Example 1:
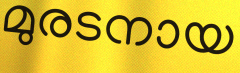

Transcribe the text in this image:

മുരടനായ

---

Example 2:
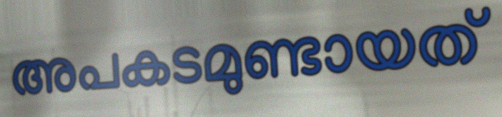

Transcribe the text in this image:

അപകടമുണ്ടായത്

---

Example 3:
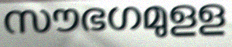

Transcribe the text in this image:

സൗഭഗമുളള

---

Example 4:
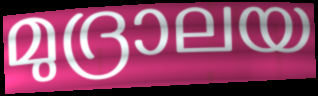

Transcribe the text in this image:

മുദ്രാലയ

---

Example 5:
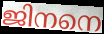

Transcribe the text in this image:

ജിനനെ